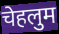
चेहलुम